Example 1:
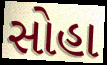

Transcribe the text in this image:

સોહા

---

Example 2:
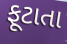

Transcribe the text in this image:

ફૂટાતા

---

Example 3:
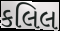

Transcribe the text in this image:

કલિલ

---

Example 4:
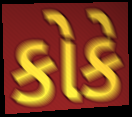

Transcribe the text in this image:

કોકે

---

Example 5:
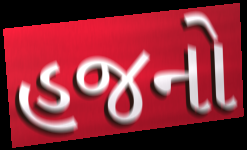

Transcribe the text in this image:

હજનો